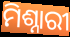
ମିଶ୍ନାରୀ